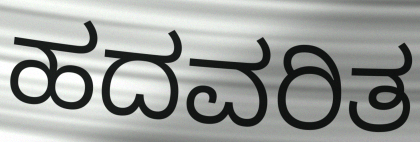
ಹದವರಿತ